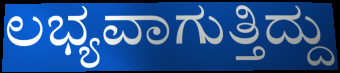
ಲಭ್ಯವಾಗುತ್ತಿದ್ದು